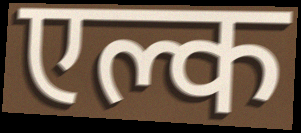
एल्क